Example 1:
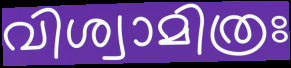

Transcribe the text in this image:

വിശ്വാമിത്രഃ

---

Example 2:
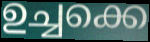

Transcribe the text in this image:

ഉച്ചക്കെ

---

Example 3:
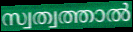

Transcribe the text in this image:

സ്വത്വത്താൽ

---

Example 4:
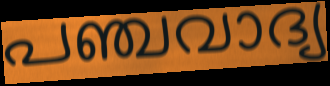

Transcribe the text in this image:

പഞ്ചവാദ്യ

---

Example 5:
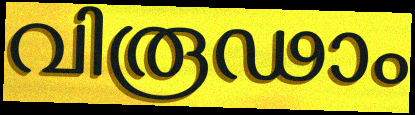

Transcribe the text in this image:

വിരൂഢാം